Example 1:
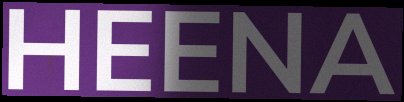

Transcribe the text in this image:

HEENA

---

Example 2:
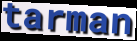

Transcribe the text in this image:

tarman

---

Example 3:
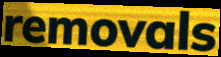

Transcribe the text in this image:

removals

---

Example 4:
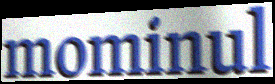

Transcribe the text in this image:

mominul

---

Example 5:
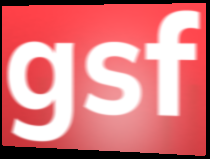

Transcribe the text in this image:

gsf